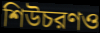
শিউচরণও